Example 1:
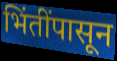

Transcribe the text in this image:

भिंतींपासून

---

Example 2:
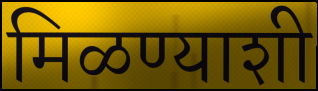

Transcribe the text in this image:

मिळण्याशी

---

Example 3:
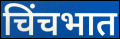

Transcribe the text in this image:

चिंचभात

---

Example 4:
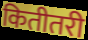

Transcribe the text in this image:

कितीतरी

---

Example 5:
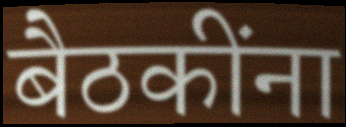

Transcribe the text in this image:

बैठकींना